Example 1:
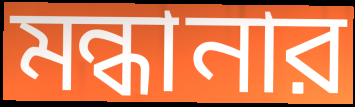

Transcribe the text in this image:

মন্ধানার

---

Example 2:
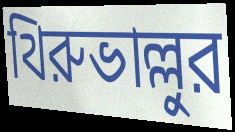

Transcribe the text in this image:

থিরুভাল্লুর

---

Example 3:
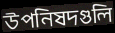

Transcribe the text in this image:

উপনিষদগুলি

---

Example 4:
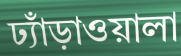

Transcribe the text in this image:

ঢ্যাঁড়াওয়ালা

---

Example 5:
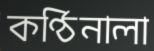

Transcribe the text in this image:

কণ্ঠিনালা